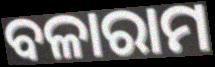
ବଳାରାମ